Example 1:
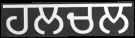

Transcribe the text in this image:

ਹਲਚਲ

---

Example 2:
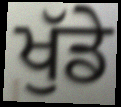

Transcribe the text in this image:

ਖੁੱਡੇ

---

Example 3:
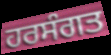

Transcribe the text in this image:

ਹਰਸੰਗਤ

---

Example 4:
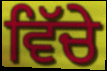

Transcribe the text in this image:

ਵਿੱਚੇ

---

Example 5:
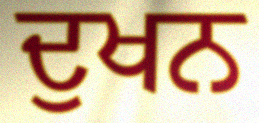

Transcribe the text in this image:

ਦੁਖਨ